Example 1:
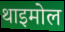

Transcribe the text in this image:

थाइमोल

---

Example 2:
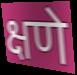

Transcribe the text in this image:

क्षणे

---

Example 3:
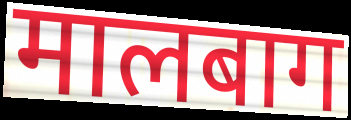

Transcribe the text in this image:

मालबाग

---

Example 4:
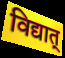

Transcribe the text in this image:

विद्यात्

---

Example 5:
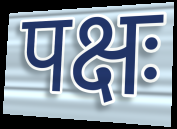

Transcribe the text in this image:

पक्षः